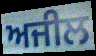
ਅਜੀਲ